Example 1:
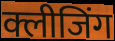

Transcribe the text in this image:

क्‍लीजिंग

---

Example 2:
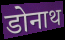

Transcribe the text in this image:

डोनाथ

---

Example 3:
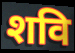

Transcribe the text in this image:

शवि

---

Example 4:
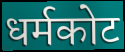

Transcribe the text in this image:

धर्मकोट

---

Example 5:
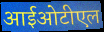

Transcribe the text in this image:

आईओटीएल